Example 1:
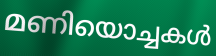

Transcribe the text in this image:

മണിയൊച്ചകൾ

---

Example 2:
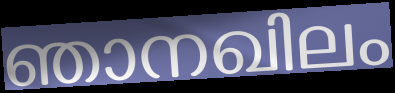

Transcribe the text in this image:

ഞാനഖിലം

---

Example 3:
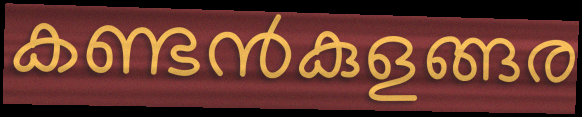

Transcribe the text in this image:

കണ്ടൻകുളങ്ങര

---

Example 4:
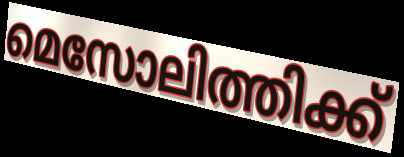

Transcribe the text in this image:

മെസോലിത്തിക്ക്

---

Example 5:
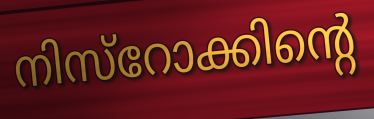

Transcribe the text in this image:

നിസ്റോക്കിന്റെ